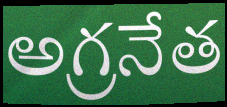
అగ్రనేత